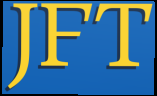
JFT